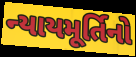
ન્યાયમૂર્તિનો